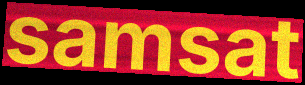
samsat